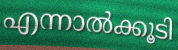
എന്നാൽക്കൂടി